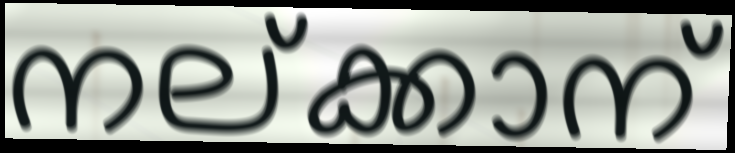
നല്ക്കാന്